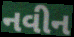
નવીન